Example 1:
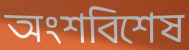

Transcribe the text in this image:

অংশবিশেষ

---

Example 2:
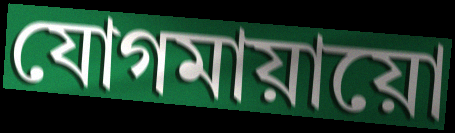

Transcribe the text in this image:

যোগমায়ায়ো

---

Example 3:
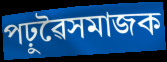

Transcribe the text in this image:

পঢ়ুৱৈসমাজক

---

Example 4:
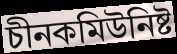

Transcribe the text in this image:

চীনকমিউনিষ্ট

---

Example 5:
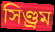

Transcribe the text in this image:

সিণ্ড্ৰম